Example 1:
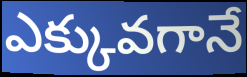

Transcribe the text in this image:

ఎక్కువగానే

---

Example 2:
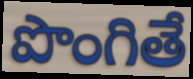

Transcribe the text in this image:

పొంగితే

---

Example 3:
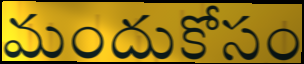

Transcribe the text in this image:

మందుకోసం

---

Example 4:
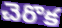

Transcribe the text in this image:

చెరొక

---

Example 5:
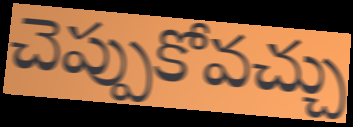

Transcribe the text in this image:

చెప్పుకోవచ్చు